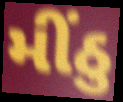
મીંઠુ